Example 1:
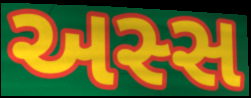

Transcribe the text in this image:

અસ્સ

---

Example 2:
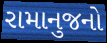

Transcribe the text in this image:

રામાનુજનો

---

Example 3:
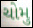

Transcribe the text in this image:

ચોમુ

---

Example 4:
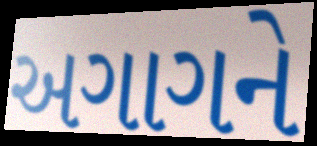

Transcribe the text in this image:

અગાગને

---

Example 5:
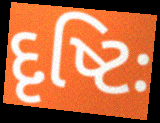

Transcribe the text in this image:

દૃષ્ટિઃ